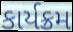
કાર્યક્રમ